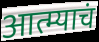
आत्म्याचं